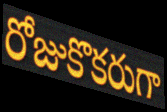
రోజుకొకరుగా